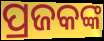
ପ୍ରଜକଙ୍କ